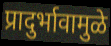
प्रादुर्भावामुळे